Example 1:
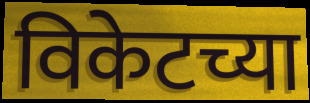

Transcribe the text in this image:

विकेटच्या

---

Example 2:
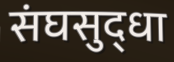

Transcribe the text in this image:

संघसुद्धा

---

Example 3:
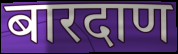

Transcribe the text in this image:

बारदाण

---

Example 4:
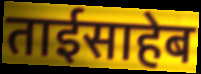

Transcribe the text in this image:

ताईसाहेब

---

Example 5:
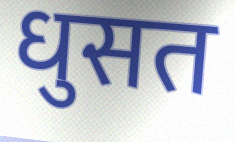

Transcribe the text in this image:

धुसत